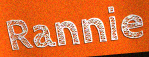
Rannie